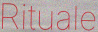
Rituale